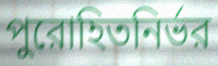
পুরোহিতনির্ভর